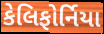
કેલિફોર્નિયા